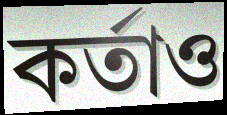
কর্তাও